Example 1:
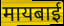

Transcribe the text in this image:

मायबाई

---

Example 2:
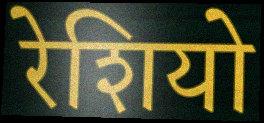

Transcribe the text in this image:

रेशियो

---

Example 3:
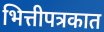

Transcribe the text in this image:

भित्तीपत्रकात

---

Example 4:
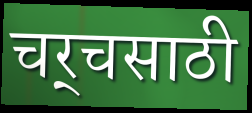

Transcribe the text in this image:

चर्चसाठी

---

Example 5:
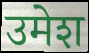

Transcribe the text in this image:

उमेश